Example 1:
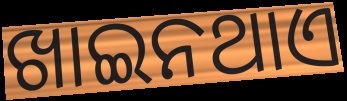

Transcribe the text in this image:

ଖାଇନଥାଏ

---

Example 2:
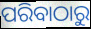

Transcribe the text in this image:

ପରିବାଠାରୁ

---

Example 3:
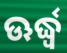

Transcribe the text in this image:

ଊର୍ଦ୍ଧ୍ବ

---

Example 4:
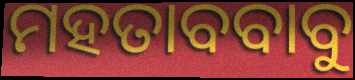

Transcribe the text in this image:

ମହତାବବାବୁ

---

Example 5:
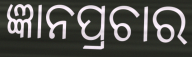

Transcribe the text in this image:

ଜ୍ଞାନପ୍ରଚାର